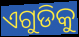
ଏଗୁଡିକୁ